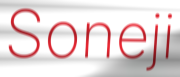
Soneji